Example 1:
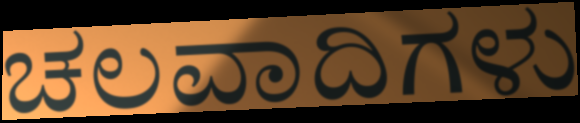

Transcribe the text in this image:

ಚಲವಾದಿಗಳು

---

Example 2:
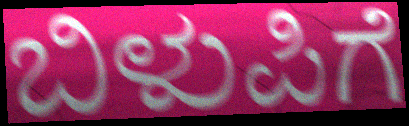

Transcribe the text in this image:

ಬಿಳುಪಿಗೆ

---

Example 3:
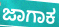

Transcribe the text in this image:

ಜಾಗಾಕ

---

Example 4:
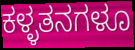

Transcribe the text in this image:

ಕಳ್ಳತನಗಳೂ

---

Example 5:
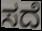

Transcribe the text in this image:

ಸದೆ